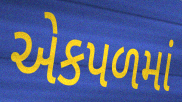
એકપળમાં